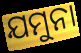
ଯମୁନା